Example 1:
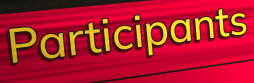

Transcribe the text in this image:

Participants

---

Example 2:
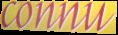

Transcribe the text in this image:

connu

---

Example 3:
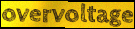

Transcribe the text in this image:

overvoltage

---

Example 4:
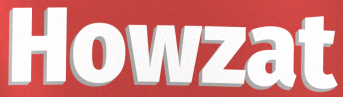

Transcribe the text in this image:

Howzat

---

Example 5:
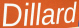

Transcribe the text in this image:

Dillard